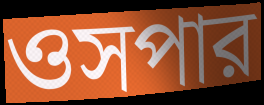
ওসপার